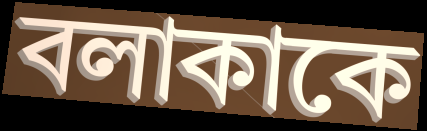
বলাকাকে